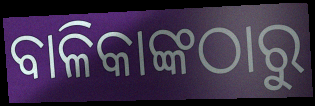
ବାଳିକାଙ୍କଠାରୁ